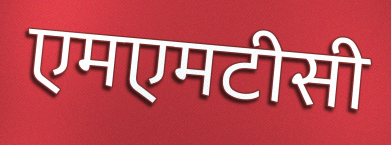
एमएमटीसी